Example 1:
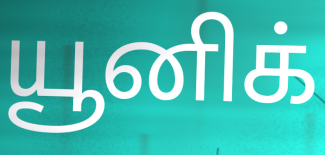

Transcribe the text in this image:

யூனிக்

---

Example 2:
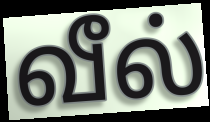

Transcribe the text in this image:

வீல்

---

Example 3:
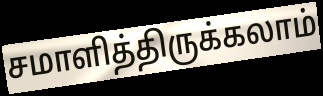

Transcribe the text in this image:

சமாளித்திருக்கலாம்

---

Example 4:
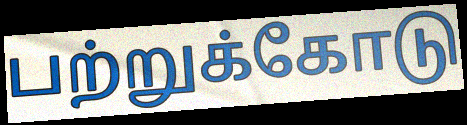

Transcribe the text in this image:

பற்றுக்கோடு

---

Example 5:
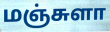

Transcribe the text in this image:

மஞ்சுளா